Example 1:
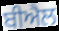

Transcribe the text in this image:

ਬੀਐਲ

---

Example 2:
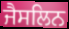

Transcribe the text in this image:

ਜੈਸਲਿਨ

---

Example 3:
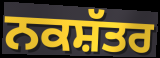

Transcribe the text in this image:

ਨਕਸ਼ੱਤਰ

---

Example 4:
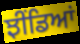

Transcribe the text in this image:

ਝੀਂਡਿਆਂ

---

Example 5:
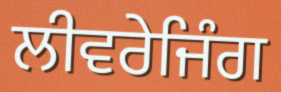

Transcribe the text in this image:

ਲੀਵਰੇਜਿੰਗ